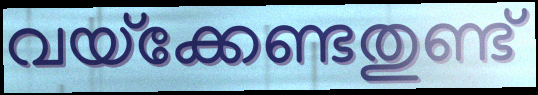
വയ്‌ക്കേണ്ടതുണ്ട്